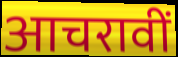
आचरावीं